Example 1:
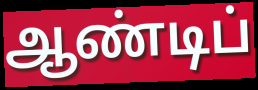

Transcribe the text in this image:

ஆண்டிப்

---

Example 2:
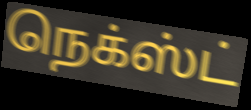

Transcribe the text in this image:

நெக்ஸ்ட்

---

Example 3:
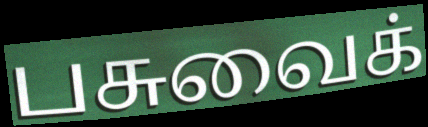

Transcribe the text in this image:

பசுவைக்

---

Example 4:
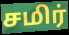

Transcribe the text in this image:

சமிர்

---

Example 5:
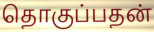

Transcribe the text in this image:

தொகுப்பதன்